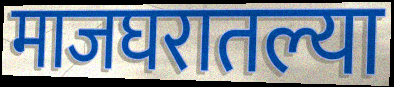
माजघरातल्या